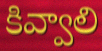
కివ్వాలి